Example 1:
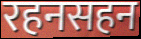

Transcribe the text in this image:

रहनसहन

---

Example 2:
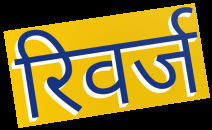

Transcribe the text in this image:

रिवर्ज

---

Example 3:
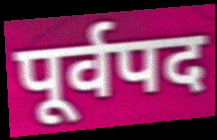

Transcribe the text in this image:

पूर्वपद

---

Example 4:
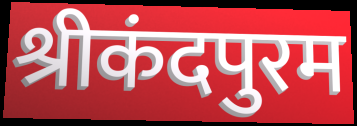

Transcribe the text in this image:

श्रीकंदपुरम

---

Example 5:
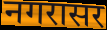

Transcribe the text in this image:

नगरासर